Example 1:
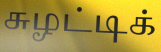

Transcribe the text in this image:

சுழட்டிக்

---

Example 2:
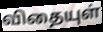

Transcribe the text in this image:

விதையுள்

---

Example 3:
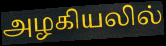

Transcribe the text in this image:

அழகியலில்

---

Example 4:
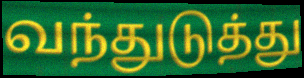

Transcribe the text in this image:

வந்துடுத்து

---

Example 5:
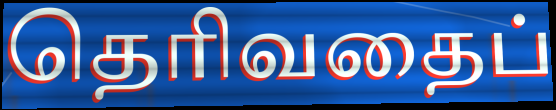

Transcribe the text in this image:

தெரிவதைப்